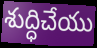
శుద్ధిచేయు